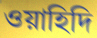
ওয়াহিদি